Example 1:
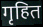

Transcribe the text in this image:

गृहित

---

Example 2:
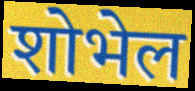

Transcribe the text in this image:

शोभेल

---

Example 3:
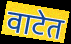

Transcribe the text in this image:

वाटेत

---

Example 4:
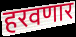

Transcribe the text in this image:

हरवणार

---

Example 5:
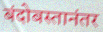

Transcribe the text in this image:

बंदोबस्तानंतर